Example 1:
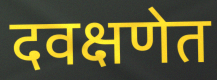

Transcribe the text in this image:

दवक्षणेत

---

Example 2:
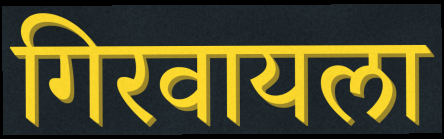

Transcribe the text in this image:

गिरवायला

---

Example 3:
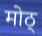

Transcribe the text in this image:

मोठ्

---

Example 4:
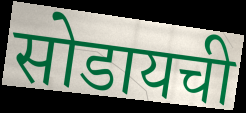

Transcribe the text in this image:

सोडायची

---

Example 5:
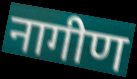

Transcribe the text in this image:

नागीण